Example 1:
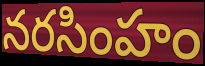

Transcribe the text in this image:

నరసింహం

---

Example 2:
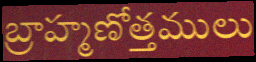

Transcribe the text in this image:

బ్రాహ్మణోత్తములు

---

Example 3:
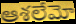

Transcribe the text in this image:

ఆశలేమో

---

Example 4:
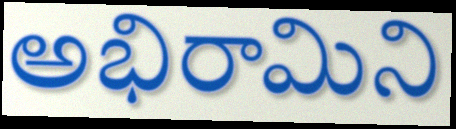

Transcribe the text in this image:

అభిరామిని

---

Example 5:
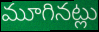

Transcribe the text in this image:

మూగినట్లు